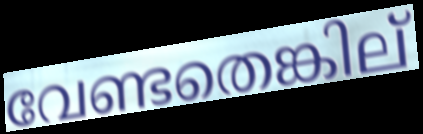
വേണ്ടതെങ്കില്